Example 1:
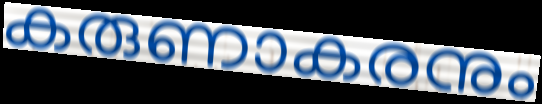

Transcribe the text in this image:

കരുണാകരനും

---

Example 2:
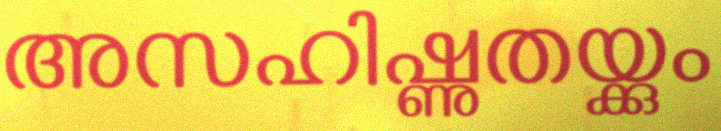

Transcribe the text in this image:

അസഹിഷ്ണുതയ്ക്കും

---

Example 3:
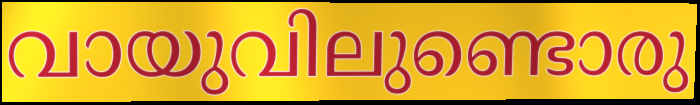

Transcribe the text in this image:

വായുവിലുണ്ടൊരു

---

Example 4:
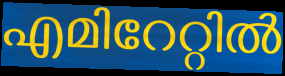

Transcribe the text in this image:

എമിറേറ്റിൽ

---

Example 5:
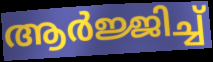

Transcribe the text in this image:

ആർജ്ജിച്ച്